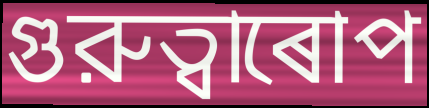
গুৰুত্বাৰোপ